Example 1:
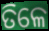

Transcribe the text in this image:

ତିଳେ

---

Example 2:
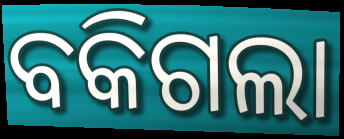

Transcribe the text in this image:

ବକିଗଲା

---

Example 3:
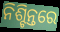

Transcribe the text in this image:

ନିଶ୍ଚିନ୍ତରେ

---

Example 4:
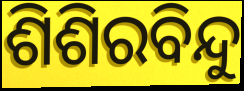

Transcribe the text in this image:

ଶିଶିରବିନ୍ଦୁ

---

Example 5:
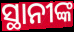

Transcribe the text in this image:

ସ୍ଥାନୀଙ୍କ